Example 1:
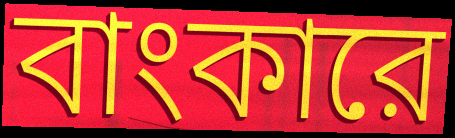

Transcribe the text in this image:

বাংকারে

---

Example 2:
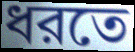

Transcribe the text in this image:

ধরতে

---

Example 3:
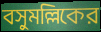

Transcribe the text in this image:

বসুমল্লিকের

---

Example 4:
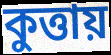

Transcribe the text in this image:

কুত্তায়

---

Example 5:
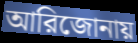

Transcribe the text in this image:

আরিজোনায়